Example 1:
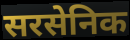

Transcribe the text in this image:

सरसेनिक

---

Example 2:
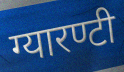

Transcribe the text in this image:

ग्यारण्टी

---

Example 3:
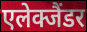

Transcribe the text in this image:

एलेक्जैंडर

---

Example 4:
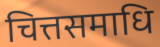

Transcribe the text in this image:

चित्तसमाधि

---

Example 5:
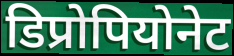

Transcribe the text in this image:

डिप्रोपियोनेट